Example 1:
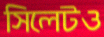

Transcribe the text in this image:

সিলেটও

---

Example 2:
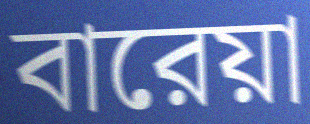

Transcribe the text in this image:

বারেয়া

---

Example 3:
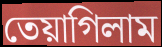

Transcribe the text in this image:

তেয়াগিলাম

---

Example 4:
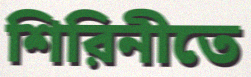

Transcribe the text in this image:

শিরিনীতে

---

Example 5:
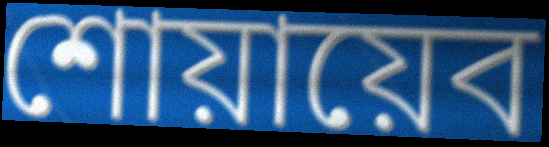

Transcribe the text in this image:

শোয়ায়েব